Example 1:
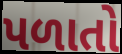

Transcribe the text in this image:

પળાતો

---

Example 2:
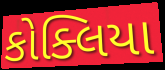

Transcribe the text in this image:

કોક્લિયા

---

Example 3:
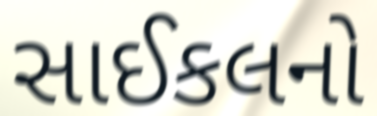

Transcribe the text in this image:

સાઈકલનો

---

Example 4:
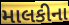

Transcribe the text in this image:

માલકીના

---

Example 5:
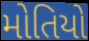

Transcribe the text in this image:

મોતિયો